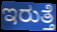
ಇರುತ್ತೆ